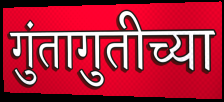
गुंतागुतीच्या